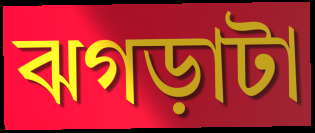
ঝগড়াটা